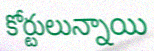
కోర్టులున్నాయి